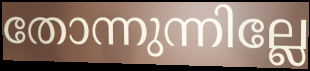
തോന്നുന്നില്ലേ